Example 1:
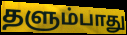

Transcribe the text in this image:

தளும்பாது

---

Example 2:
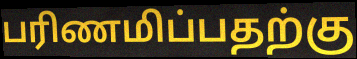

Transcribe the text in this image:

பரிணமிப்பதற்கு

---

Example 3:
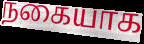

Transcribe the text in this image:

நகையாக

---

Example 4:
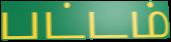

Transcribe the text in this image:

பட்டம்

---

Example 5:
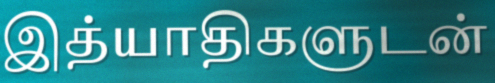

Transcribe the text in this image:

இத்யாதிகளுடன்